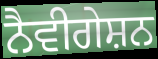
ਨੈਵੀਗੇਸ਼ਨ